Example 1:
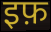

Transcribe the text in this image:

इफ़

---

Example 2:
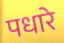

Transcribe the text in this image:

पधारे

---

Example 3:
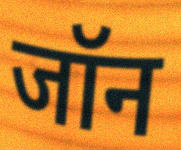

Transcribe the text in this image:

जॉन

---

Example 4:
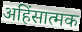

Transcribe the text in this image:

अहिंसात्मक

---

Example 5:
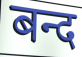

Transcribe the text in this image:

बन्द